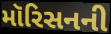
મૉરિસનની